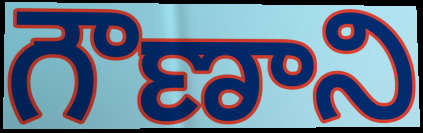
గౌణాని